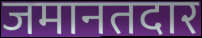
जमानतदार